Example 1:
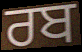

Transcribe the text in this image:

ਰਬ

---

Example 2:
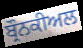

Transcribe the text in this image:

ਬ੍ਰੌਨਕੀਅਲ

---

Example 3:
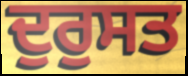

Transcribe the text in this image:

ਦੁਰੁਸਤ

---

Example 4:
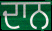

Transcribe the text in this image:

ਦਾਨ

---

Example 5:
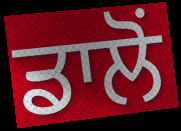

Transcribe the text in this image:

ਡਾਲੋਂ